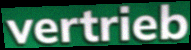
vertrieb